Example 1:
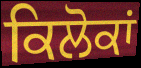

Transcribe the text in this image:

ਕਿਲੋਕਾਂ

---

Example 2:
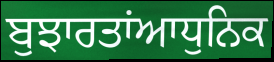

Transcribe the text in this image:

ਬੁਝਾਰਤਾਂਆਧੁਨਿਕ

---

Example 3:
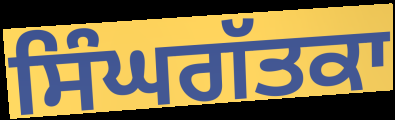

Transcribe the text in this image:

ਸਿੰਘਗੱਤਕਾ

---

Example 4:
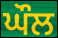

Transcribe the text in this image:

ਘੌਲ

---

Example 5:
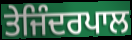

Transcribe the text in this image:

ਤੇਜਿੰਦਰਪਾਲ